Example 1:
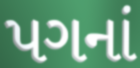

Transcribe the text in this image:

પગનાં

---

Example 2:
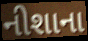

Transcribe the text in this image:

નીશાના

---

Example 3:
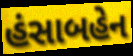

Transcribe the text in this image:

હંસાબહેન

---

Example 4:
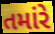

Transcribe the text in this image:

તમાંરે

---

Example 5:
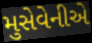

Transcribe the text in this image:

મુસેવેનીએ